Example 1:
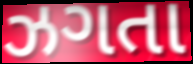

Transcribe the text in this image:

ઝગતા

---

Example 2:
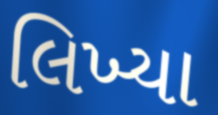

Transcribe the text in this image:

લિખ્યા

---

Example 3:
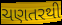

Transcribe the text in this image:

ચણતરથી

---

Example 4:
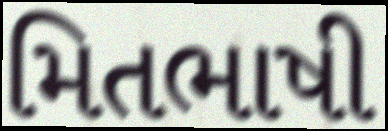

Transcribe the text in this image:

મિતભાષી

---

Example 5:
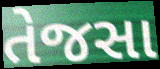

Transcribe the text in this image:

તેજસા